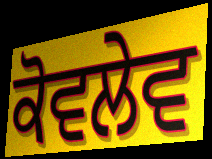
ਕੋਵਲੇਵ